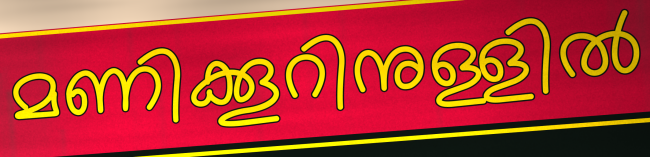
മണിക്കൂറിനുള്ളിൽ